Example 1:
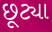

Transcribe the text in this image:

છૂટ્યા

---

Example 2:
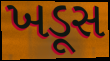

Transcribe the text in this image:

ખડૂસ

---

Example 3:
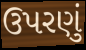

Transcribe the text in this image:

ઉપરણું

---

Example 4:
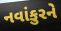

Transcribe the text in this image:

નવાંકુરને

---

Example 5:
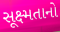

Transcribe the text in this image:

સૂક્ષ્મતાનો